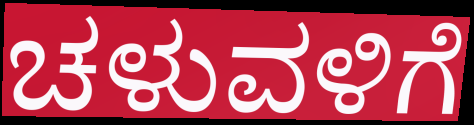
ಚಳುವಳಿಗೆ